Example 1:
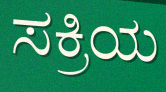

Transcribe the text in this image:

ಸಕ್ರಿಯ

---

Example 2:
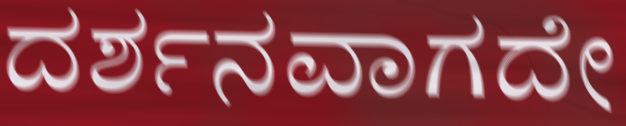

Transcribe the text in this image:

ದರ್ಶನವಾಗದೇ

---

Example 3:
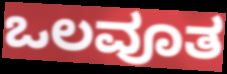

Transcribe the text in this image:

ಒಲವೂತ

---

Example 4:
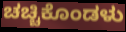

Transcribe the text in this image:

ಚಚ್ಚಿಕೊಂಡಳು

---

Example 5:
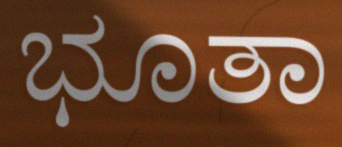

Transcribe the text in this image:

ಭೂತಾ